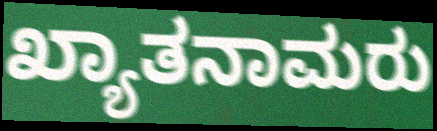
ಖ್ಯಾತನಾಮರು